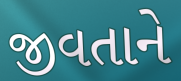
જીવતાને